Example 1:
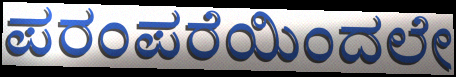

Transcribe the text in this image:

ಪರಂಪರೆಯಿಂದಲೇ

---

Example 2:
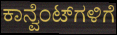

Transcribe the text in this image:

ಕಾನ್ವೆಂಟ್‌ಗಳಿಗೆ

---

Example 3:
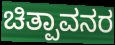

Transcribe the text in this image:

ಚಿತ್ಪಾವನರ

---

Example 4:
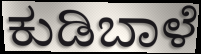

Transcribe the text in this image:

ಕುಡಿಬಾಳೆ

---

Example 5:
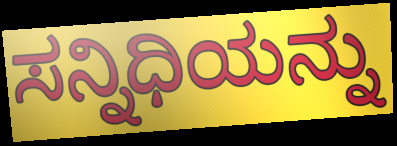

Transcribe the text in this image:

ಸನ್ನಿಧಿಯನ್ನು